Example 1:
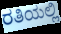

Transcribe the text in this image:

ರತಿಯಲ್ಲಿ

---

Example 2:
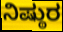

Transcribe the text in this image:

ನಿಷ್ಠುರ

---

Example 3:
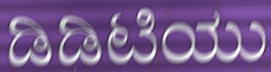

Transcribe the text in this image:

ಡಿಡಿಟಿಯು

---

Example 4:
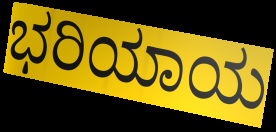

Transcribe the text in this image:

ಭರಿಯಾಯ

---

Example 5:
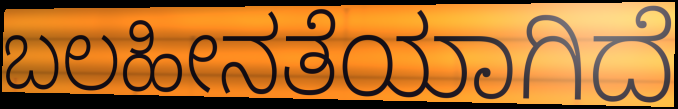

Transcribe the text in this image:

ಬಲಹೀನತೆಯಾಗಿದೆ